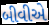
બીવીએ